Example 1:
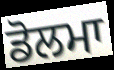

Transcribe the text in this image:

ਡੋਲਮਾ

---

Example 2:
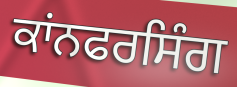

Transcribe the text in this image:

ਕਾਂਨਫਰਸਿੰਗ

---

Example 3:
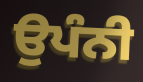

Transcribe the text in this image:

ਉਪੰਨੀ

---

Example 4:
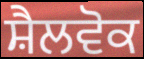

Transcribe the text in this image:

ਸ਼ੈਲਵੋਕ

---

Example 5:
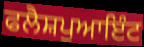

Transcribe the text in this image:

ਫਲੈਸ਼ਪੁਆਇੰਟ